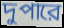
দুপারে